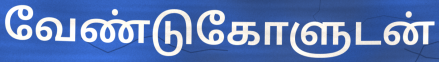
வேண்டுகோளுடன்